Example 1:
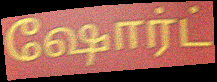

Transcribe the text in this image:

ஷோர்ட்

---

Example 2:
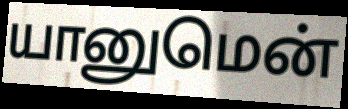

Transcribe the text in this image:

யானுமென்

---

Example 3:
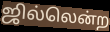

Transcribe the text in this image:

ஜில்லென்ற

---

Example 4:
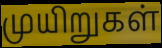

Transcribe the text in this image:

முயிறுகள்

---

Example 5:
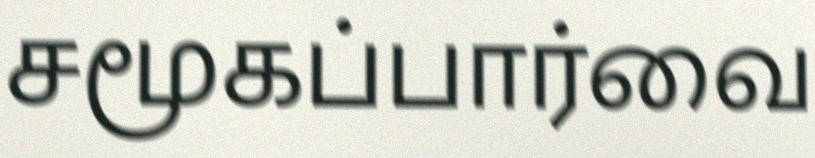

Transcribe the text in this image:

சமூகப்பார்வை